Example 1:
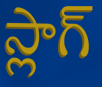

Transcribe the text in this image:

స్లాగ్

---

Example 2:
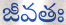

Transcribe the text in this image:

జీవతః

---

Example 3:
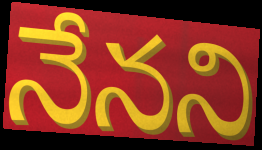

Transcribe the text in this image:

నేనని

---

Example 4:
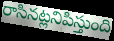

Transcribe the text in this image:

రాసినట్లనిపిస్తుంది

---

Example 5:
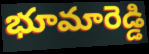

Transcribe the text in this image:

భూమారెడ్డి